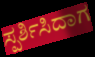
ಸ್ಪರ್ಶಿಸಿದಾಗ